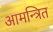
आमन्त्रित